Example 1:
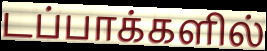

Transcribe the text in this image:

டப்பாக்களில்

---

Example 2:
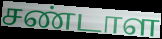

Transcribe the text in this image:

சண்டாள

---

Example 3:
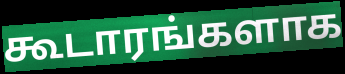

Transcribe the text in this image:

கூடாரங்களாக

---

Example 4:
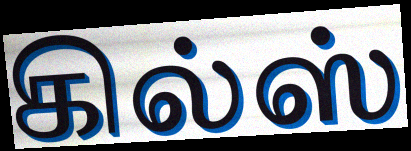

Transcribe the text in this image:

கில்ஸ்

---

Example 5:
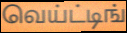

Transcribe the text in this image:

வெய்ட்டிங்